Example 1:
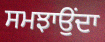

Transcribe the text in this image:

ਸਮਝਾਉਂਦਾ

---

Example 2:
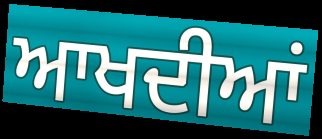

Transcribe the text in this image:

ਆਖਦੀਆਂ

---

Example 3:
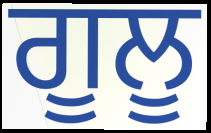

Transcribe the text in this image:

ਗੂਲੂ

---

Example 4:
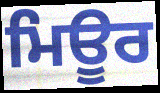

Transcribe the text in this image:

ਮਿਊਰ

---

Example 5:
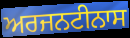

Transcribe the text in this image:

ਅਰਜਨਟੀਨਾਸ